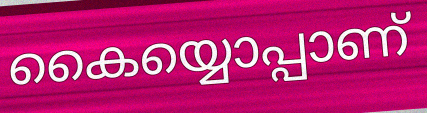
കൈയ്യൊപ്പാണ്